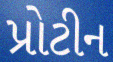
પ્રોટીન